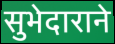
सुभेदाराने